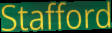
Stafford